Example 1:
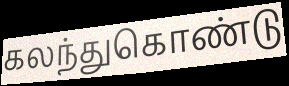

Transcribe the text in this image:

கலந்துகொண்டு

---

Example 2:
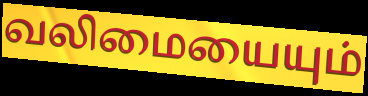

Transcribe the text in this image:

வலிமையையும்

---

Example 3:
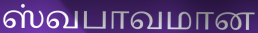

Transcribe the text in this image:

ஸ்வபாவமான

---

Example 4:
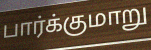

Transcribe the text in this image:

பார்க்குமாறு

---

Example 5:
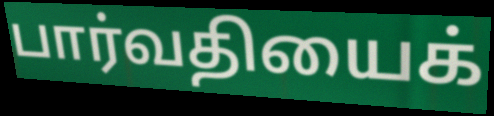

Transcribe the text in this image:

பார்வதியைக்